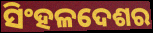
ସିଂହଳଦେଶର